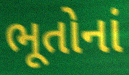
ભૂતોનાં